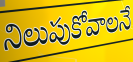
నిలుపుకోవాలనే